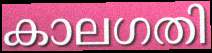
കാലഗതി